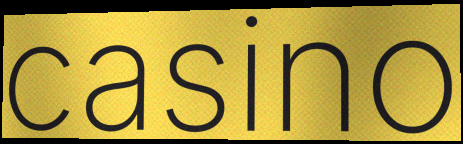
casino